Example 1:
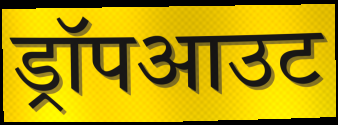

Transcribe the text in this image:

ड्रॉपआउट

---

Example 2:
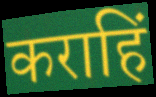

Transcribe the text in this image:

कराहिं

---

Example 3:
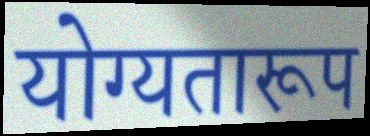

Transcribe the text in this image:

योग्यतारूप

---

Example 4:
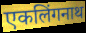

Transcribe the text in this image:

एकलिंगनाथ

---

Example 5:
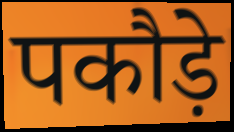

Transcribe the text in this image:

पकौड़े